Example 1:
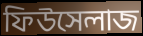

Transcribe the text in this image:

ফিউসেলাজ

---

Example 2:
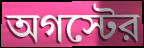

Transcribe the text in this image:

অগস্টের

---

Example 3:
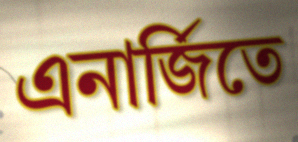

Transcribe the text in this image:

এনার্জিতে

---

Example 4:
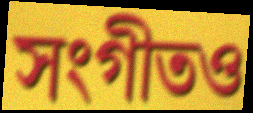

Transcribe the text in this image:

সংগীতও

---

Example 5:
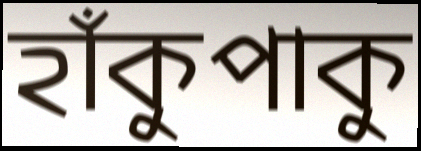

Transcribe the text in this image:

হাঁকুপাকু